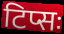
टिप्सः